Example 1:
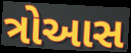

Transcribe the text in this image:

ત્રોઆસ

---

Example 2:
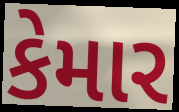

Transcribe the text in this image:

કેમાર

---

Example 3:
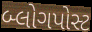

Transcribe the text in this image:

બ્લોગપોસ્ટ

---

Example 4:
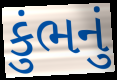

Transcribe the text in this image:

કુંભનું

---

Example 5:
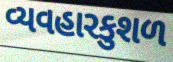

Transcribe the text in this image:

વ્યવહારકુશળ